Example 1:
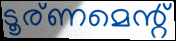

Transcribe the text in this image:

ടൂര്ണമെന്റ്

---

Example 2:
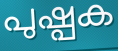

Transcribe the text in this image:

പുഷ്പക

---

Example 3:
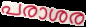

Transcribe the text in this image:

പരാശര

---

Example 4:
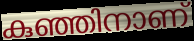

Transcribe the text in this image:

കുഞ്ഞിനാണ്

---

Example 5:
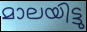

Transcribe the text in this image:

മാലയിട്ടു